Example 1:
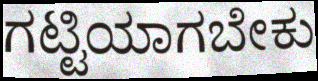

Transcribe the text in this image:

ಗಟ್ಟಿಯಾಗಬೇಕು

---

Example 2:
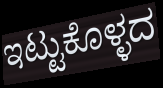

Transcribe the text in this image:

ಇಟ್ಟುಕೊಳ್ಳದ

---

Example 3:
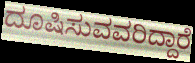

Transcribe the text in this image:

ದೂಷಿಸುವವರಿದ್ದಾರೆ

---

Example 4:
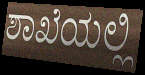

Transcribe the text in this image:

ಶಾಖೆಯಲ್ಲಿ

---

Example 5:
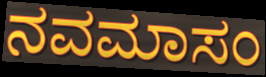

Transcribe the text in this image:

ನವಮಾಸಂ